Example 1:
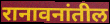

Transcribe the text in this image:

रानावनांतील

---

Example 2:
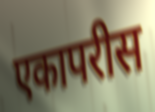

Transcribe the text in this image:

एकापरीस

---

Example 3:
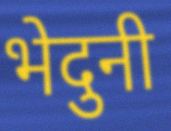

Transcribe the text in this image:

भेदुनी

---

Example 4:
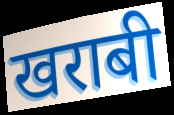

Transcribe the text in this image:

खराबी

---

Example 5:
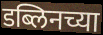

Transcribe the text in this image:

डब्लिनच्या